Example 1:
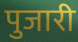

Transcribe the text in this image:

पुजारी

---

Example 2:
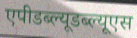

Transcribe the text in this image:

एपीडब्ल्यूडब्ल्यूएस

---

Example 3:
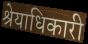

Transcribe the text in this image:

श्रेयाधिकारी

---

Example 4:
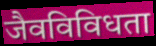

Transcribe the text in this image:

जैवविविधता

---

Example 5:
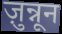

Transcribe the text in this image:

ज़ुन्नून